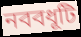
নববধূটি